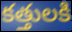
కత్తులకి